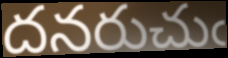
దనరుచుఁ